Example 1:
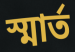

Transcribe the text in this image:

স্মার্ত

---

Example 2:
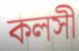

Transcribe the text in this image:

কলসী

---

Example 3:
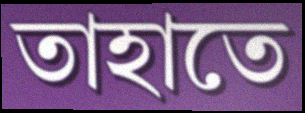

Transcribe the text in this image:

তাহাতে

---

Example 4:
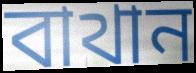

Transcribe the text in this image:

বাথান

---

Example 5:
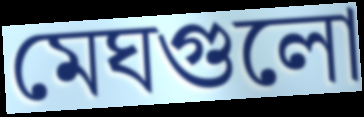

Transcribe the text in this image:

মেঘগুলো